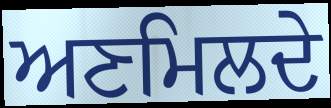
ਅਣਮਿਲਦੇ